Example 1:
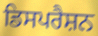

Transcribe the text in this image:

ਡਿਸਪਰੈਸ਼ਨ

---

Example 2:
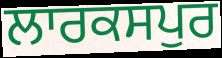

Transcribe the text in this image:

ਲਾਰਕਸਪੁਰ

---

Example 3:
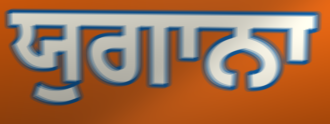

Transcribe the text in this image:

ਯੁਗਾਨਾ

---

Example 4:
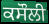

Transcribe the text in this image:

ਕਸੌਲੀ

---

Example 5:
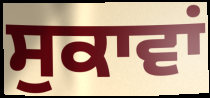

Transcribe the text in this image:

ਸੁਕਾਵਾਂ